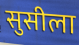
सुसीला